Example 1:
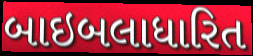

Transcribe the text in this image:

બાઇબલાધારિત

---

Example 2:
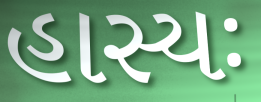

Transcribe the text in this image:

હાસ્યઃ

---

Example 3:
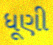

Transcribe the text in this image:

ધૂણી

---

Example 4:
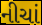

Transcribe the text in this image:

નીચાં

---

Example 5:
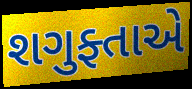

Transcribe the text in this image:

શગુફ્તાએ